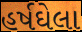
હર્ષઘેલા